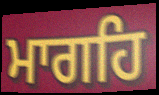
ਮਾਗਹਿ